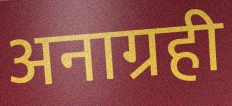
अनाग्रही